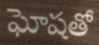
ఘోషతో